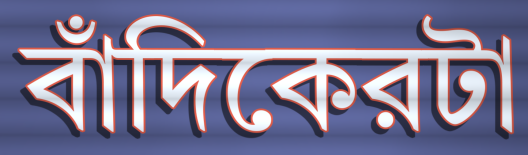
বাঁদিকেরটা